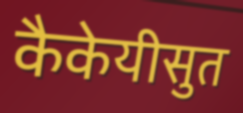
कैकेयीसुत